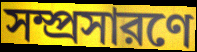
সম্প্রসারণে